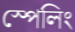
স্পেলিং